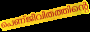
പെണ്ജീവിതത്തിന്റെ